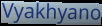
Vyakhyano